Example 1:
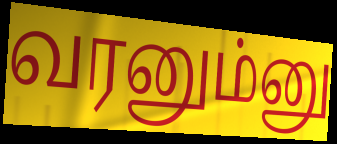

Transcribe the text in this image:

வரனும்னு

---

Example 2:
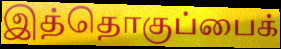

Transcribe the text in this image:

இத்தொகுப்பைக்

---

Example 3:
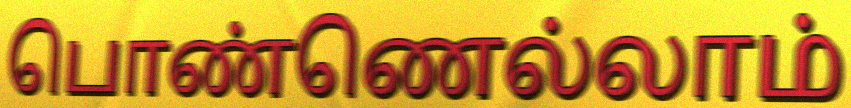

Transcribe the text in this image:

பொண்ணெல்லாம்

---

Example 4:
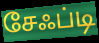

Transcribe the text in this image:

சேஃப்டி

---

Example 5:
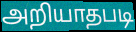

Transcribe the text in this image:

அறியாதபடி